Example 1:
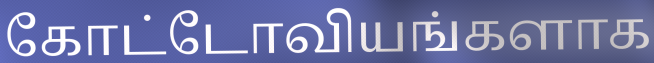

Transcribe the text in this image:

கோட்டோவியங்களாக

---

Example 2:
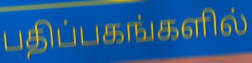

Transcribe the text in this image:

பதிப்பகங்களில்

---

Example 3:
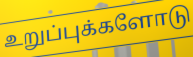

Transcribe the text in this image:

உறுப்புக்களோடு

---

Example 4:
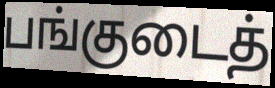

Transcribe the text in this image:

பங்குடைத்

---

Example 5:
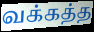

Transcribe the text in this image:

வக்கத்த